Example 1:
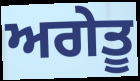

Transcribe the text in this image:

ਅਗੇਤੂ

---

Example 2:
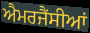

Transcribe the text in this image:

ਐਮਰਜੈਂਸੀਆਂ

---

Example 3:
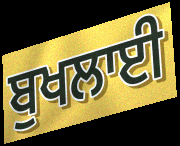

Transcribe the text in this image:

ਬੁਖਲਾਈ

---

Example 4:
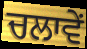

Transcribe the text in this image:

ਚਲਾਵੇਂ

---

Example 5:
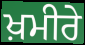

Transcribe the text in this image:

ਖ਼ਮੀਰੇ